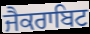
ਜੈਕਰਾਬਿਟ